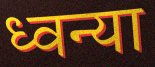
ध्वन्या